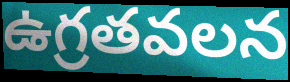
ఉగ్రతవలన